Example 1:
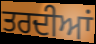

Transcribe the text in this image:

ਤਰਦੀਆਂ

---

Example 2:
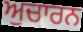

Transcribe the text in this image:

ਅੁਚਾਰਨ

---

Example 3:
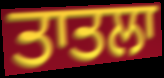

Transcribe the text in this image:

ਤਾਤਲਾ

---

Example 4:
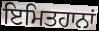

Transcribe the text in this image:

ਇਮਿਤਹਾਨਾਂ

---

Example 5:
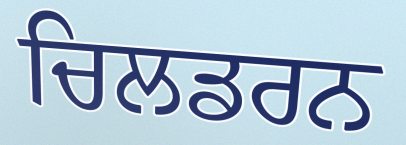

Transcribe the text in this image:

ਚਿਲਡਰਨ